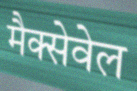
मैक्सेवेल